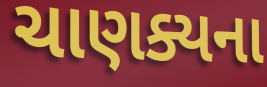
ચાણક્યના